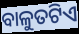
ବାଳୁତଟିଏ